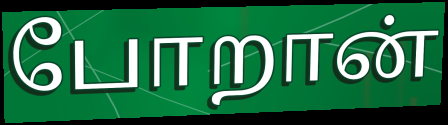
போறான்